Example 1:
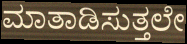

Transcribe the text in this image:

ಮಾತಾಡಿಸುತ್ತಲೇ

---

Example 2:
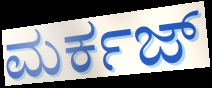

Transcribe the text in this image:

ಮರ್ಕಜ್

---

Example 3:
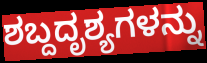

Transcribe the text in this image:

ಶಬ್ದದೃಶ್ಯಗಳನ್ನು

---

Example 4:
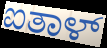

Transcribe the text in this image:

ಐತಾಳ್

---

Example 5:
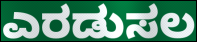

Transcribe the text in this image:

ಎರಡುಸಲ